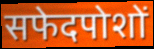
सफेदपोशों